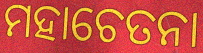
ମହାଚେତନା